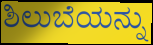
ಶಿಲುಬೆಯನ್ನು